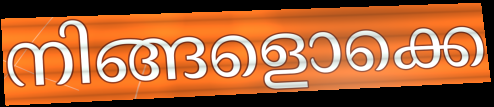
നിങ്ങളൊക്കെ